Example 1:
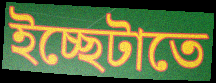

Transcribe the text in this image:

ইচ্ছেটাতে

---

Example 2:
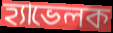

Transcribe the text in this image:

হ্যাভেলক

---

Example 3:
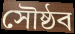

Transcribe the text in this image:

সৌষ্ঠব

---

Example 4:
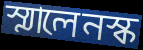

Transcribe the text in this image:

স্মালেনস্ক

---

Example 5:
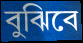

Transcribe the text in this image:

বুঝিবে